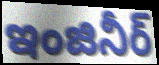
ఇంజినీర్